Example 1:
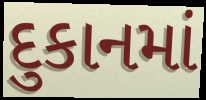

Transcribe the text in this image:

દુકાનમાં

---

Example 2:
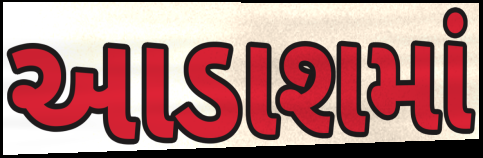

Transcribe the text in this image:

આડાશમાં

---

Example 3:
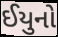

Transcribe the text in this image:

ઈયુનો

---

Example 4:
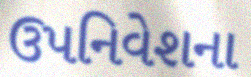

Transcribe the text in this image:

ઉપનિવેશના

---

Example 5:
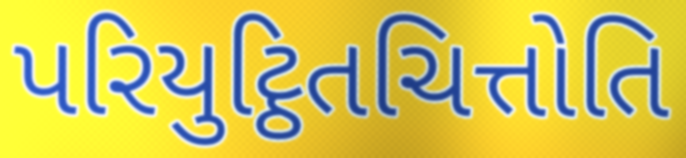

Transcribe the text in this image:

પરિયુટ્ઠિતચિત્તોતિ